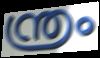
ന്ത്രം